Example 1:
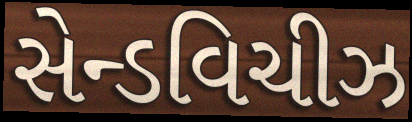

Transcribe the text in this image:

સેન્ડવિચીઝ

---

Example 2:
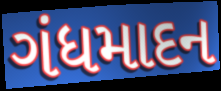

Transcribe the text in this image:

ગંધમાદન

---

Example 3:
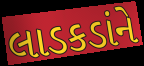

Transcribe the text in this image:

લાડકડાંને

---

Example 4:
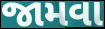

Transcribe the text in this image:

જામવા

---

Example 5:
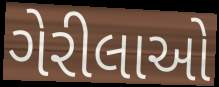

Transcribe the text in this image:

ગેરીલાઓ